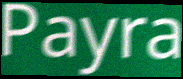
Payra